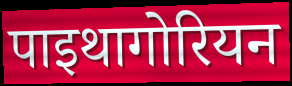
पाइथागोरियन